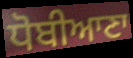
ਧੋਬੀਆਣਾ